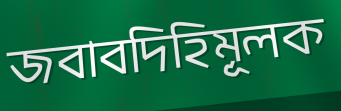
জবাবদিহিমূলক